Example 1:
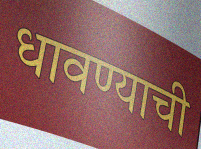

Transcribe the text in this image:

धावण्याची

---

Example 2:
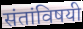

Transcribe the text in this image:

संतांविषयी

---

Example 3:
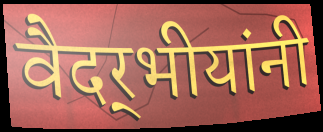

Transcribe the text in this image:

वैदर्भीयांनी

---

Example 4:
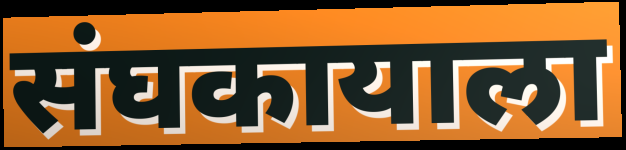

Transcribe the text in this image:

संघकायाला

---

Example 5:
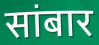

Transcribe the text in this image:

सांबार